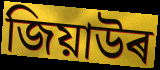
জিয়াউৰ